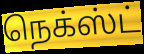
நெக்ஸ்ட்